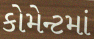
કોમેન્ટમાં